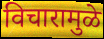
विचारामुळे